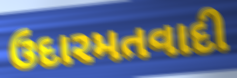
ઉદારમતવાદી